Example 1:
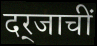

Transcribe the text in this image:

दर्जाचीं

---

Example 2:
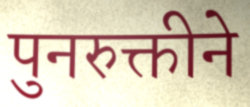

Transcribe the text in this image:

पुनरुक्तीने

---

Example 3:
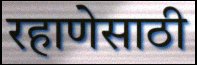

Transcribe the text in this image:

रहाणेसाठी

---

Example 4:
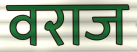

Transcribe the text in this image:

वराज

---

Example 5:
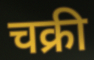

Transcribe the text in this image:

चक्री